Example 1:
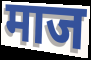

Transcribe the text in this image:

माज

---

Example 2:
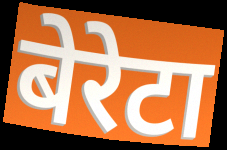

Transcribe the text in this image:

बेरेटा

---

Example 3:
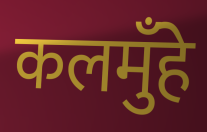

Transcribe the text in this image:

कलमुँहे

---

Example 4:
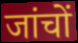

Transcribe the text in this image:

जांचों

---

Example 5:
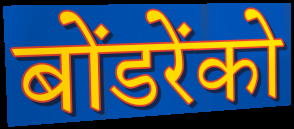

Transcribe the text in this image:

बोंडरेंको